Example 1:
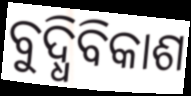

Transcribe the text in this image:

ବୁଦ୍ଧିବିକାଶ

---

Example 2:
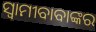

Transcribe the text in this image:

ସ୍ଵାମୀବାବାଙ୍କର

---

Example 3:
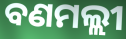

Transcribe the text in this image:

ବଣମଲ୍ଲୀ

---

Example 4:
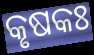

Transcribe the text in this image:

କୃଷକଃ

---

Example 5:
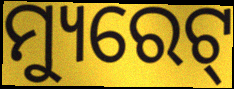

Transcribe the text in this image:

ମ୍ୟୁରେଟ୍